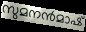
സുമനൻമാഷ്